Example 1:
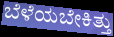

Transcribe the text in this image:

ಬೆಳೆಯಬೇಕಿತ್ತು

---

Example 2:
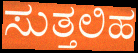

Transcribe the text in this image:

ಸುತ್ತಲಿಹ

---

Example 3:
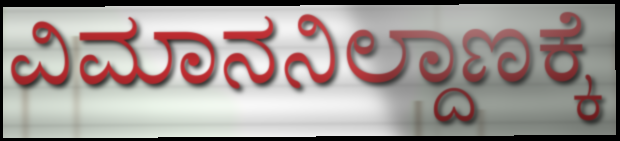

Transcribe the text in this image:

ವಿಮಾನನಿಲ್ದಾಣಕ್ಕೆ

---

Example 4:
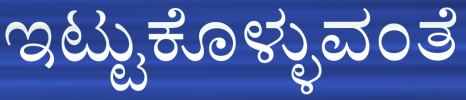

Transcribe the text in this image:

ಇಟ್ಟುಕೊಳ್ಳುವಂತೆ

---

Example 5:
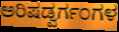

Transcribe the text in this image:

ಅರಿಷಡ್ವರ್ಗಂಗಳ